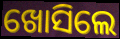
ଖୋସିଲେ